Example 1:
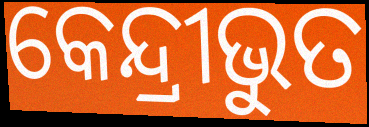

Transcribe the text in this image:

କେନ୍ଦ୍ରୀଭୁତ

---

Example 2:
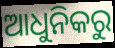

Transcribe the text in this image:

ଆଧୁନିକରୁ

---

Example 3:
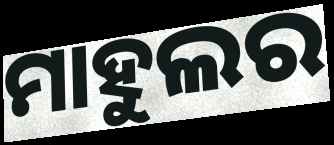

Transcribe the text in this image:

ମାହୁଲର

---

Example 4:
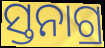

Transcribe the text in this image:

ସ୍ତନାଗ୍ର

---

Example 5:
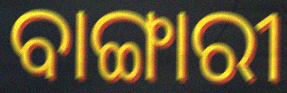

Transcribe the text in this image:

ବାଙ୍ଗାରୀ